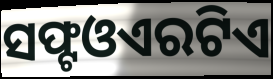
ସଫ୍ଟଓଏରଟିଏ